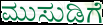
ಮುಸುಡಿಗೆ